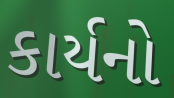
કાર્યનો